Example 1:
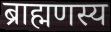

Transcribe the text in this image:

ब्राह्मणस्य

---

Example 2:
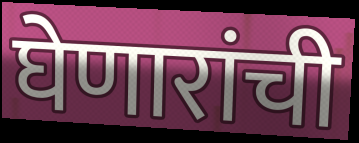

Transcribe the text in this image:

घेणारांची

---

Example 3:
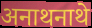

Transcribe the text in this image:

अनाथनाथे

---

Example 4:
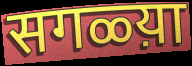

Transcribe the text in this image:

सगळ्य़ा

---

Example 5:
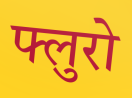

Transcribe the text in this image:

फ्लुरो